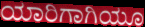
ಯಾರಿಗಾಗಿಯೂ